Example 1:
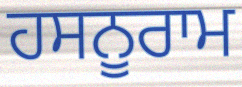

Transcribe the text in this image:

ਹਸਨੂਰਾਮ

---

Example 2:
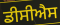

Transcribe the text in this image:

ਡੀਸੀਐਸ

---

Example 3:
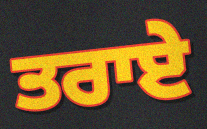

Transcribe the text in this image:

ਤਰਾਏ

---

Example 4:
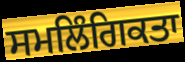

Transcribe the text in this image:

ਸਮਲਿੰਗਿਕਤਾ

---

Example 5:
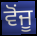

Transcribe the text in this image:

ਵੋਂਜੂ